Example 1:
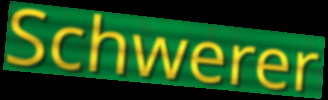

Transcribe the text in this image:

Schwerer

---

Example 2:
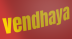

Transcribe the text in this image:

vendhaya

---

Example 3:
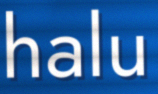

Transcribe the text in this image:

halu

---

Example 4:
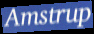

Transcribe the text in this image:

Amstrup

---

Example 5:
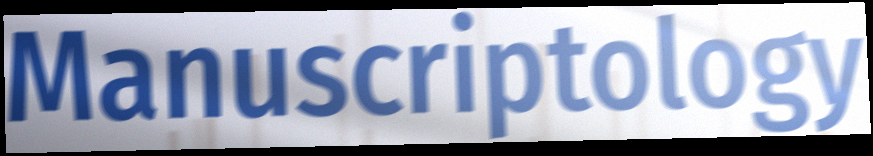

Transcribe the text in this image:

Manuscriptology